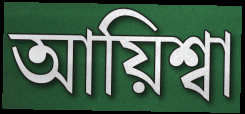
আয়িশ্বা